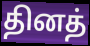
தினத்